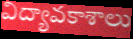
విద్యావకాశాలు